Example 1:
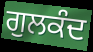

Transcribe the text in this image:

ਗੁਲਕੰਦ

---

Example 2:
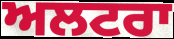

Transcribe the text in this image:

ਅਲਟਰਾ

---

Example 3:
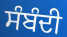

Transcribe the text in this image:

ਸੰਬੰਦੀ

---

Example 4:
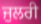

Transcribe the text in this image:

ਜੁਲਰੀ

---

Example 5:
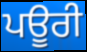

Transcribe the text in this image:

ਪਊਰੀ